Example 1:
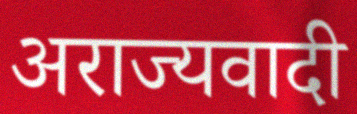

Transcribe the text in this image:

अराज्यवादी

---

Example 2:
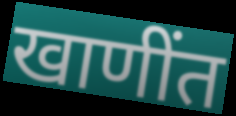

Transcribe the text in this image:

खाणींत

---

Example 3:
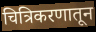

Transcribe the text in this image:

चित्रिकरणातून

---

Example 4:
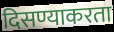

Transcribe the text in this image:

दिसण्याकरता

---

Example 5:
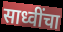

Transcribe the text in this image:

साध्वींचा